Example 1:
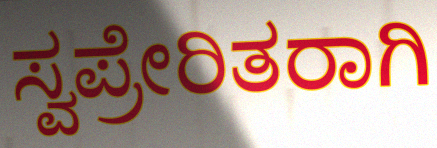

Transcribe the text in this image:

ಸ್ವಪ್ರೇರಿತರಾಗಿ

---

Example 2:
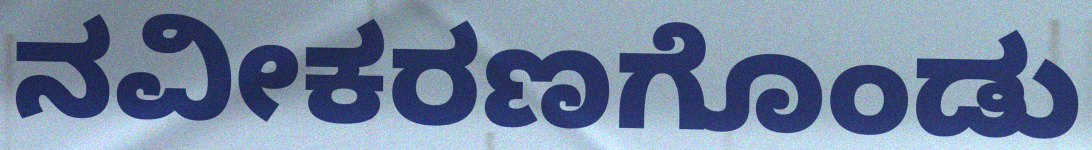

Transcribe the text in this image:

ನವೀಕರಣಗೊಂಡು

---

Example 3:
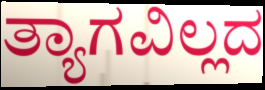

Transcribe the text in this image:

ತ್ಯಾಗವಿಲ್ಲದ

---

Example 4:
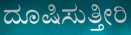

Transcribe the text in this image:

ದೂಷಿಸುತ್ತೀರಿ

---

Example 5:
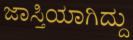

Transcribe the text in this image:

ಜಾಸ್ತಿಯಾಗಿದ್ದು